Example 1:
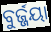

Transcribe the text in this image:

ବୁର୍ଜ୍ଜୟା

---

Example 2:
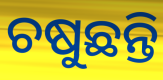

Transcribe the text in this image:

ଚଷୁଛନ୍ତି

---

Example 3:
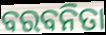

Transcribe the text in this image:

ବରବନିତା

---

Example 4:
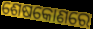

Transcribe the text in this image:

ଶେଷକୋଣରେ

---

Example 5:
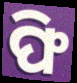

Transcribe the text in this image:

ଫି